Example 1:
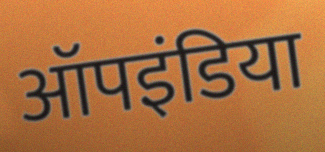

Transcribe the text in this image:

ऑपइंडिया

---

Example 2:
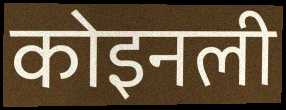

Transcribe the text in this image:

कोइनली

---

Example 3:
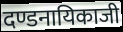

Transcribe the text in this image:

दण्डनायिकाजी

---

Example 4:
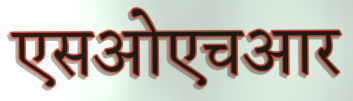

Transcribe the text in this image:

एसओएचआर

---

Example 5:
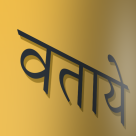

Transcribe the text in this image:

वताये